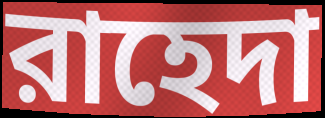
রাহেদা